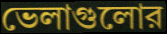
ভেলাগুলোর